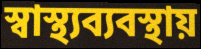
স্বাস্থ্যব্যবস্থায়